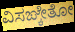
ವಿಸಙ್ಕೇತೋ